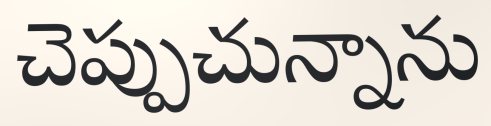
చెప్పుచున్నాను